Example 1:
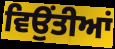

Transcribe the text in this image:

ਵਿਉਂਤੀਆਂ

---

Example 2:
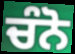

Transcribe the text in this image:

ਚੰਨੋ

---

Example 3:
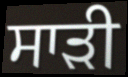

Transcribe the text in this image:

ਸਾੜੀ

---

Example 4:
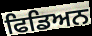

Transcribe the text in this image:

ਫਿਡਿਅਨ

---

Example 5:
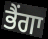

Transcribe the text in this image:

ਭੈਂਗਾ